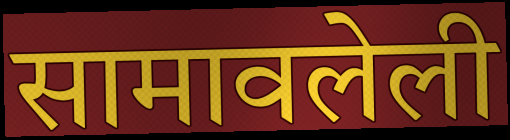
सामावलेली